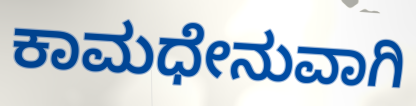
ಕಾಮಧೇನುವಾಗಿ